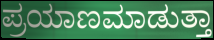
ಪ್ರಯಾಣಮಾಡುತ್ತಾ